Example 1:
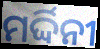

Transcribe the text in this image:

ମର୍ଦ୍ଦିନୀ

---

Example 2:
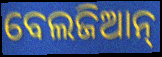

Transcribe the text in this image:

ବେଲଜିଆନ୍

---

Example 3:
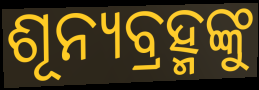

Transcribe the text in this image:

ଶୂନ୍ୟବ୍ରହ୍ମଙ୍କୁ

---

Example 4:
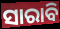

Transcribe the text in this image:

ସାରାବି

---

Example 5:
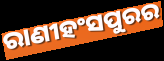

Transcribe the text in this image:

ରାଣୀହଂସପୁରର